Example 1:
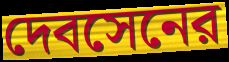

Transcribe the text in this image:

দেবসেনের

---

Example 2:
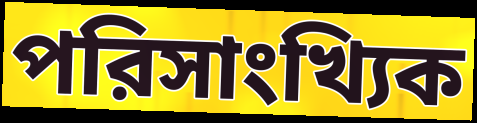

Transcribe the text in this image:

পরিসাংখ্যিক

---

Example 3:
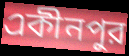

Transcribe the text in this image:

একীনপুর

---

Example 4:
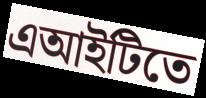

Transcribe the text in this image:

এআইটিতে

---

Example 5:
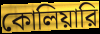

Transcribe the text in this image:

কোলিয়ারি